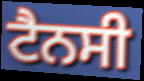
ਟੈਨਸੀ